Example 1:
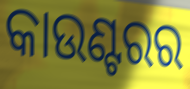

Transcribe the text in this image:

କାଉଣ୍ଟରର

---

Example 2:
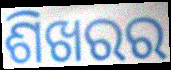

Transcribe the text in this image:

ଶିଖରର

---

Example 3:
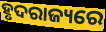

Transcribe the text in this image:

ହୃଦରାଜ୍ୟରେ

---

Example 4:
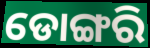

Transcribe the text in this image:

ଡୋଙ୍ଗରି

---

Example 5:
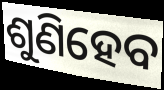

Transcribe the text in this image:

ଶୁଣିହେବ